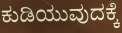
ಕುಡಿಯುವುದಕ್ಕೆ